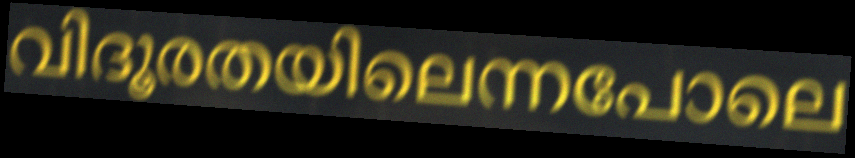
വിദൂരതയിലെന്നപോലെ